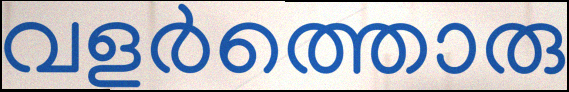
വളർത്തൊരു